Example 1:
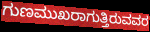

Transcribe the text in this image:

ಗುಣಮುಖರಾಗುತ್ತಿರುವವರ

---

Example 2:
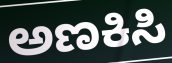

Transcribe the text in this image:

ಅಣಕಿಸಿ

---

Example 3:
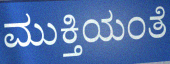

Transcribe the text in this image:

ಮುಕ್ತಿಯಂತೆ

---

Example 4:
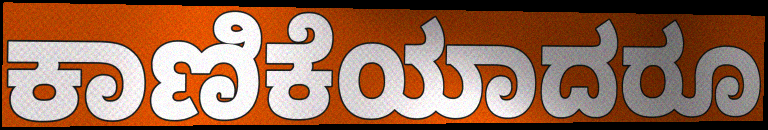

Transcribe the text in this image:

ಕಾಣಿಕೆಯಾದರೂ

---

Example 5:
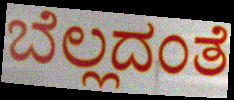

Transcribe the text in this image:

ಬೆಲ್ಲದಂತೆ